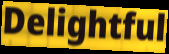
Delightful